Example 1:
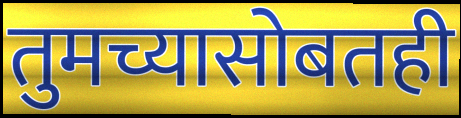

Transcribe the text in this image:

तुमच्यासोबतही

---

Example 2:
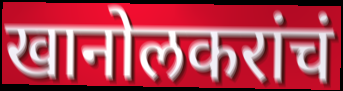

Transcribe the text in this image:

खानोलकरांचं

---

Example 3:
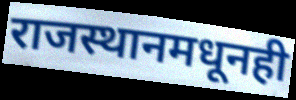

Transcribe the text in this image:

राजस्थानमधूनही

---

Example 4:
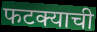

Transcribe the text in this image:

फटक्याची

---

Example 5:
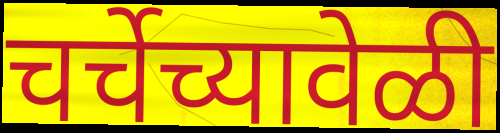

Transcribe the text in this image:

चर्चेच्यावेळी